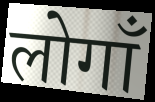
लोगाँ